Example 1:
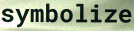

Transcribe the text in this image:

symbolize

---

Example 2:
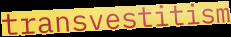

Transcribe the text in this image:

transvestitism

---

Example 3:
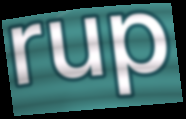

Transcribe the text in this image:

rup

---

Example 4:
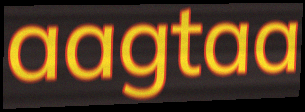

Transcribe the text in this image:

aagtaa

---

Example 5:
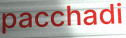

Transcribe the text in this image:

pacchadi